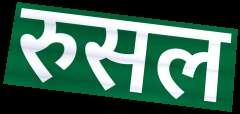
रुसल